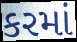
કરમાં